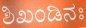
ಶಿಖಂಡಿನಃ